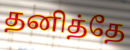
தனித்தே